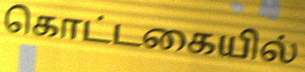
கொட்டகையில்